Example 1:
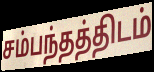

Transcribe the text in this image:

சம்பந்தத்திடம்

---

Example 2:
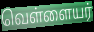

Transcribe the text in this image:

வெள்ளையர்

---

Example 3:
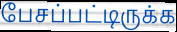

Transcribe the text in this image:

பேசப்பட்டிருக்க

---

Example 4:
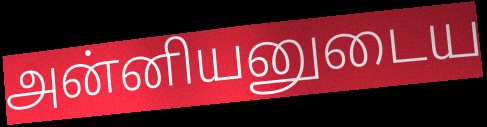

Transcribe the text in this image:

அன்னியனுடைய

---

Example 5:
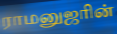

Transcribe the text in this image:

ராமனுஜரின்